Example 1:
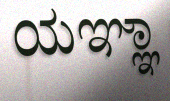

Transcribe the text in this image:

ಯಞ್ಞಾ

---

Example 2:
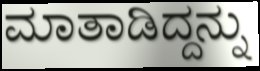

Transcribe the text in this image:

ಮಾತಾಡಿದ್ದನ್ನು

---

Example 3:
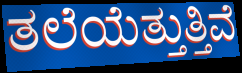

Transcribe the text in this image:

ತಲೆಯೆತ್ತುತ್ತಿವೆ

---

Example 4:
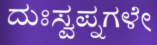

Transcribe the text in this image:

ದುಃಸ್ವಪ್ನಗಳೇ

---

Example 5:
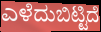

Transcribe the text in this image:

ಎಳೆದುಬಿಟ್ಟಿದೆ